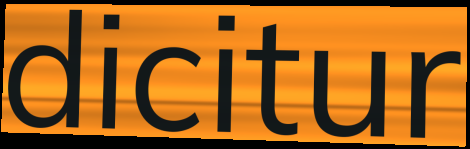
dicitur